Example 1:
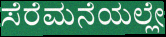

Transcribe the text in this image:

ಸೆರೆಮನೆಯಲ್ಲೇ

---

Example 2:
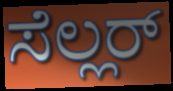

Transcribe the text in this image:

ಸೆಲ್ಲರ್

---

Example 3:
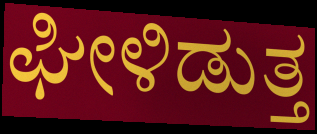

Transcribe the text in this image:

ಘೀಳಿಡುತ್ತ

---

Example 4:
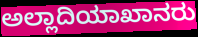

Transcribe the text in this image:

ಅಲ್ಲಾದಿಯಾಖಾನರು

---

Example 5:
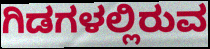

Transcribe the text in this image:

ಗಿಡಗಳಲ್ಲಿರುವ